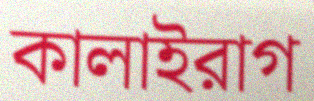
কালাইরাগ